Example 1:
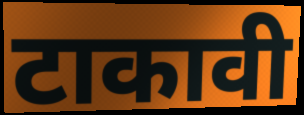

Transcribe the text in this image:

टाकावी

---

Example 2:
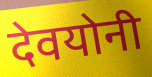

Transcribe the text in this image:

देवयोनी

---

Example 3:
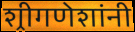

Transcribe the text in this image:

श्रीगणेशांनी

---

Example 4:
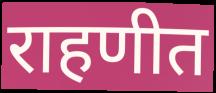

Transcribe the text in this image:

राहणीत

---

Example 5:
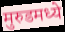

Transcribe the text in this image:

मुरुडमध्ये